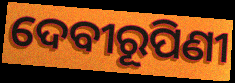
ଦେବୀରୂପିଣୀ